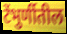
टेंभुर्णीतील